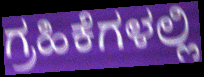
ಗ್ರಹಿಕೆಗಳಲ್ಲಿ